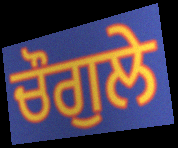
ਚੌਗੁਲੇ